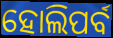
ହୋଲିପର୍ବ